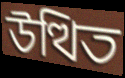
উত্থিত